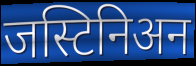
जस्टिनिअन